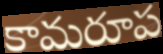
కామరూప